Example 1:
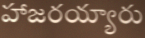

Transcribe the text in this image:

హాజరయ్యారు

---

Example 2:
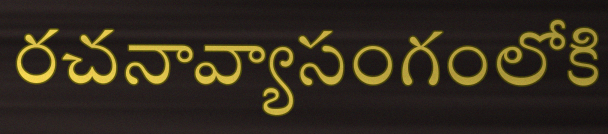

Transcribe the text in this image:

రచనావ్యాసంగంలోకి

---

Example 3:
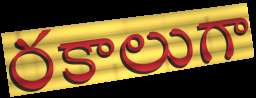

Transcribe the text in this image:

రకాలుగా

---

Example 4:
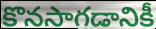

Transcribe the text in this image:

కొనసాగడానికీ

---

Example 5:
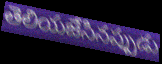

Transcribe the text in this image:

తెలియజేసినప్పుడు